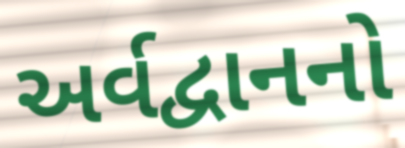
અર્વદ્વાનનો